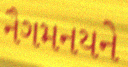
નૈગમનયને